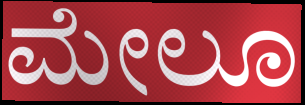
ಮೇಲೂ